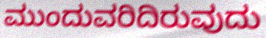
ಮುಂದುವರಿದಿರುವುದು